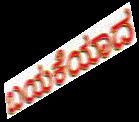
ಬಯಕೆಯಾದ